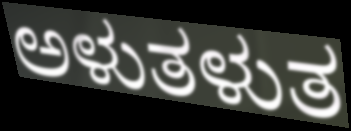
ಅಳುತಳುತ